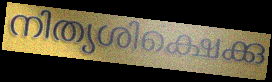
നിത്യശിക്ഷെക്കു